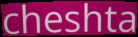
cheshta